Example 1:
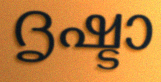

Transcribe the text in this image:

ദൃഷ്ടാ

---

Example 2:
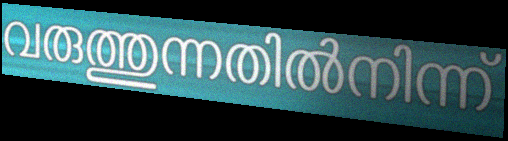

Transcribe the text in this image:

വരുത്തുന്നതിൽനിന്ന്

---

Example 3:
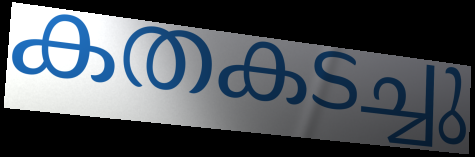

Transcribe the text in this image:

കതകടച്ചു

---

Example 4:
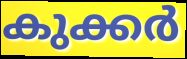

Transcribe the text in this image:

കുക്കർ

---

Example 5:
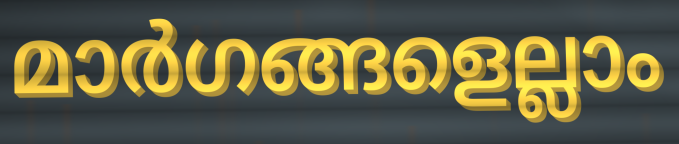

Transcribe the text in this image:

മാർഗങ്ങളെല്ലാം